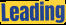
Leading